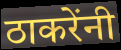
ठाकरेंनी